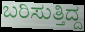
ಬರಿಸುತ್ತಿದ್ದ